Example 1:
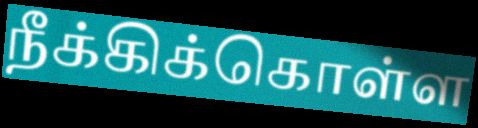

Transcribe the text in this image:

நீக்கிக்கொள்ள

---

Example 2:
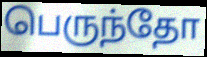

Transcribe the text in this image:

பெருந்தோ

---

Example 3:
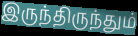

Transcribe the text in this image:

இருந்திருந்தும்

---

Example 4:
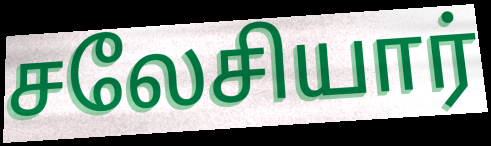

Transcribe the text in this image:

சலேசியார்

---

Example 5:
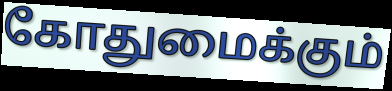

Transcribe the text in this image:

கோதுமைக்கும்